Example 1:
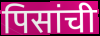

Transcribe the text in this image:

पिसांची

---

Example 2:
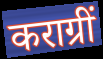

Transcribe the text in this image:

कराग्रीं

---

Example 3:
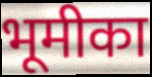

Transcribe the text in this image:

भूमीका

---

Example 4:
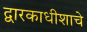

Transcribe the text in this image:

द्वारकाधीशाचे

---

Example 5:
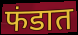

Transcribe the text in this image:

फंडात